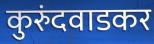
कुरुंदवाडकर